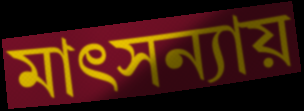
মাৎসন্যায়